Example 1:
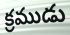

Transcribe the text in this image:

క్రముడు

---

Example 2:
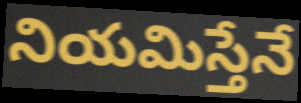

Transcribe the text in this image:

నియమిస్తేనే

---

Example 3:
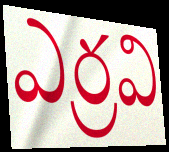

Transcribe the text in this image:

ఎర్రవి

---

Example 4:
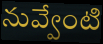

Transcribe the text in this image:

నువ్వేంటి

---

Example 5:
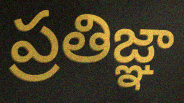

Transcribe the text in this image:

ప్రతిజ్ఞా